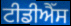
ਟੀਡੀਐੱਸ